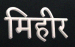
मिहीर